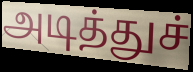
அடித்துச்